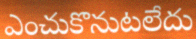
ఎంచుకొనుటలేదు